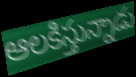
ఆలకిస్తున్నాడు